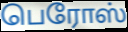
பெரோஸ்